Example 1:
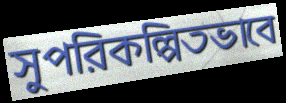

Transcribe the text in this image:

সুপরিকল্পিতভাবে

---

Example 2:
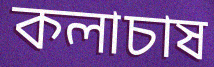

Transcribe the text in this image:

কলাচাষ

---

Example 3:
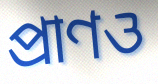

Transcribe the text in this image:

প্রাণও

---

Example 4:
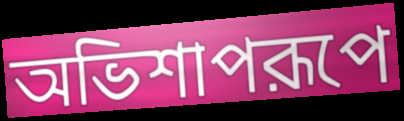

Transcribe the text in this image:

অভিশাপরূপে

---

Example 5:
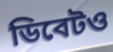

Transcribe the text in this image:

ডিবেটও